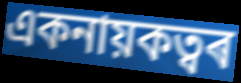
একনায়কত্বৰ